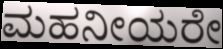
ಮಹನೀಯರೇ